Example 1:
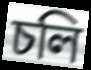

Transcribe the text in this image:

চলি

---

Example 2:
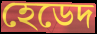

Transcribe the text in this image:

হেডেদ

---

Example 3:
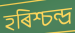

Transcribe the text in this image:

হৰিশ্চন্দ্ৰ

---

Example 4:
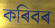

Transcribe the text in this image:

কৰিবৰ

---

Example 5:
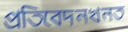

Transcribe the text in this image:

প্ৰতিবেদনখনত